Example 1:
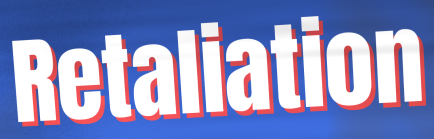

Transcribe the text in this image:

Retaliation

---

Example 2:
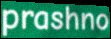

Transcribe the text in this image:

prashno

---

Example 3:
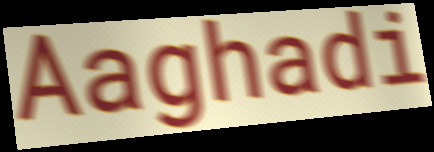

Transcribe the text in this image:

Aaghadi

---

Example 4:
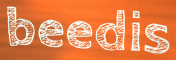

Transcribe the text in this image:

beedis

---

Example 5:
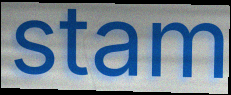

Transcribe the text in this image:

stam